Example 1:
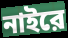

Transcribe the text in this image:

নাইরে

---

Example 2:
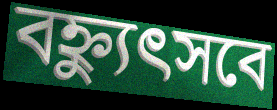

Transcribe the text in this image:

বহ্ন্যুৎসবে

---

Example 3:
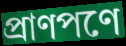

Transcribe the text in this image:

প্রাণপণে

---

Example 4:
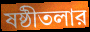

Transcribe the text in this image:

ষষ্ঠীতলার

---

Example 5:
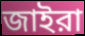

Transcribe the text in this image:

জাইরা